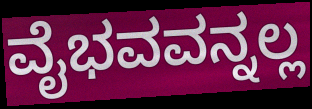
ವೈಭವವನ್ನಲ್ಲ